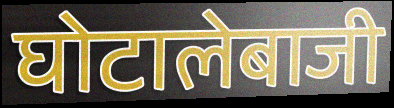
घोटालेबाजी